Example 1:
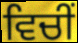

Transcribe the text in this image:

ਵਿਚੀਂ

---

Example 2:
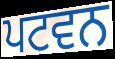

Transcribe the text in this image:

ਪਟਵਨ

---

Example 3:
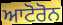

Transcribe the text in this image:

ਆਟੋਰੋਨ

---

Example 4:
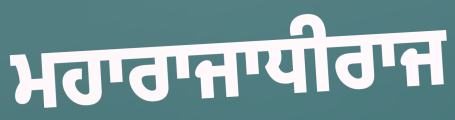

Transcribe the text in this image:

ਮਹਾਰਾਜਾਧੀਰਾਜ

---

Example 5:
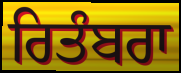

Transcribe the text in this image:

ਰਿਤੰਬਰਾ